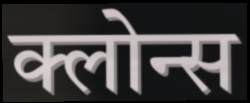
क्लोन्स